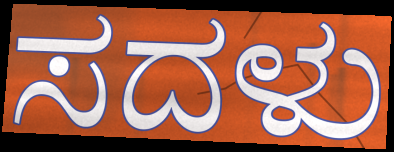
ಸದಳು